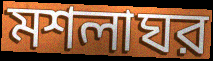
মশলাঘর